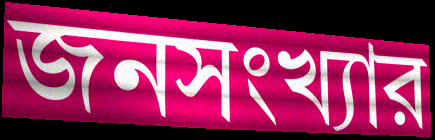
জনসংখ্যার